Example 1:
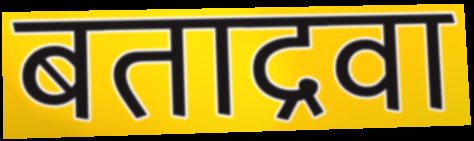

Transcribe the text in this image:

बताद्रवा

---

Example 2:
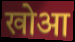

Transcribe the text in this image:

खोआ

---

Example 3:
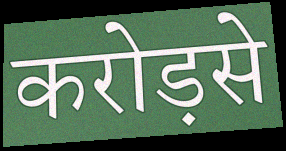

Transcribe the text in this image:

करोड़से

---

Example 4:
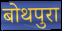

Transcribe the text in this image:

बोथपुरा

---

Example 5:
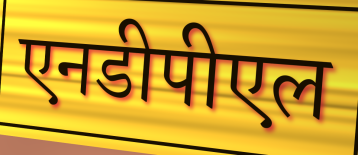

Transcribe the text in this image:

एनडीपीएल